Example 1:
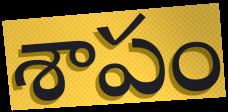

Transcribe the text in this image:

శాపం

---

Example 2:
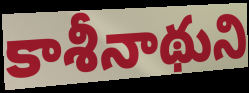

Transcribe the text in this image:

కాశీనాథుని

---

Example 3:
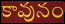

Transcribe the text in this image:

కావునం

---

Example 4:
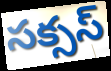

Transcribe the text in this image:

సక్సస్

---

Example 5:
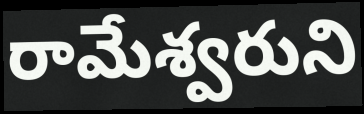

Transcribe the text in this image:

రామేశ్వరుని